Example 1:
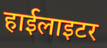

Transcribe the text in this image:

हाईलाइटर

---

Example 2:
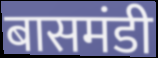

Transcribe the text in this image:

बासमंडी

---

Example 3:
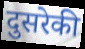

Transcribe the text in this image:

दुसरेकी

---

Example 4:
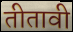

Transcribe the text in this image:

तीतावी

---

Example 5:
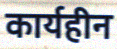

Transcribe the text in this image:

कार्यहीन